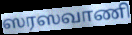
ஸரஸவாணி